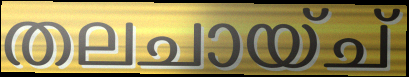
തലചായ്ച്